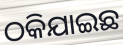
ଠକିଯାଇଛ